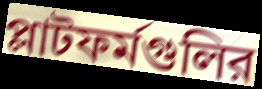
প্লাটফর্মগুলির